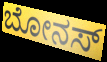
ಬೋನಸ್